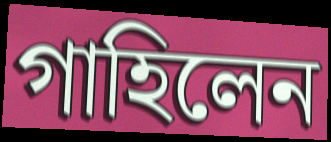
গাহিলেন